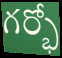
గర్భో